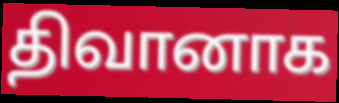
திவானாக